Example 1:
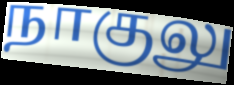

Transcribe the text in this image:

நாகுலு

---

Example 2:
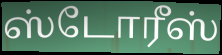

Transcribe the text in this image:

ஸ்டோரீஸ்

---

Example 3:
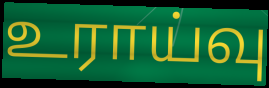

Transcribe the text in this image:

உராய்வு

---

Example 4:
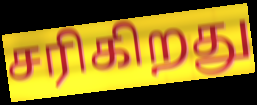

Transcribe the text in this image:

சரிகிறது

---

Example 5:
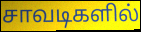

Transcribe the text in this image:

சாவடிகளில்